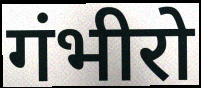
गंभीरो